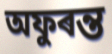
অফুৰন্ত